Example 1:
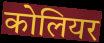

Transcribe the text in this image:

कोलियर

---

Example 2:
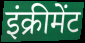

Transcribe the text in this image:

इंक्रीमेंट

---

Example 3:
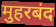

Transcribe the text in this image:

मुहरबंद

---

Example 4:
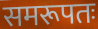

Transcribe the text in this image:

समरूपतः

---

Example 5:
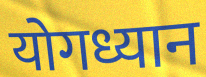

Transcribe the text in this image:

योगध्यान